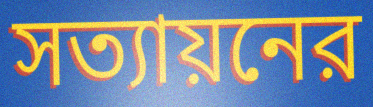
সত্যায়নের